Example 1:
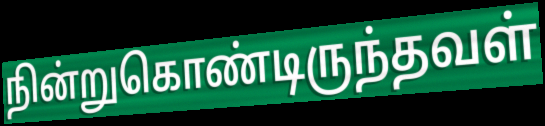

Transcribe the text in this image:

நின்றுகொண்டிருந்தவள்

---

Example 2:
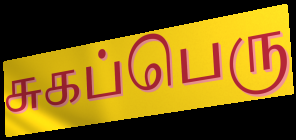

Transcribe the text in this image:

சுகப்பெரு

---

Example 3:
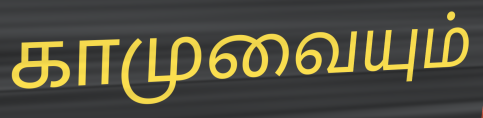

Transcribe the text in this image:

காமுவையும்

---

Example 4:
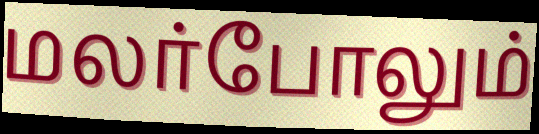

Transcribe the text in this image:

மலர்போலும்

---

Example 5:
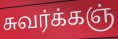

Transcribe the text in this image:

சுவர்க்கஞ்